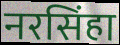
नरसिंहा